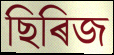
ছিৰিজ